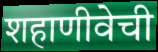
शहाणीवेची